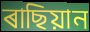
ৰাছিয়ান